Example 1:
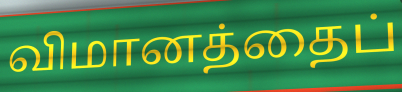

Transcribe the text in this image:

விமானத்தைப்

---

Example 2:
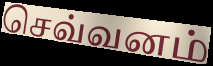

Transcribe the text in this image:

செவ்வனம்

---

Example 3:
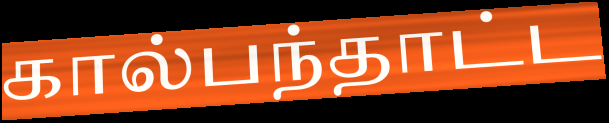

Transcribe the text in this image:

கால்பந்தாட்ட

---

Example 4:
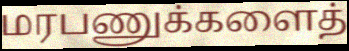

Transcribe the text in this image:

மரபணுக்களைத்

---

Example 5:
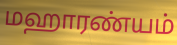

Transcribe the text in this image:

மஹாரண்யம்